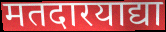
मतदारयाद्या